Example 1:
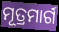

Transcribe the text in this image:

ମୂତ୍ରମାର୍ଗ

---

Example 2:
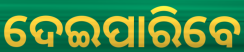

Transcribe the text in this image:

ଦେଇପାରିବେ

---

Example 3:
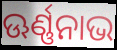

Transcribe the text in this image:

ଊର୍ଣ୍ଣନାଭ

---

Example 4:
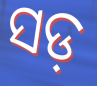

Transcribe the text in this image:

ସଡ଼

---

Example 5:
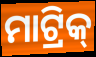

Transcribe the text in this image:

ମାଟ୍ରିକ୍